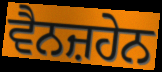
ਵੈਨਜ਼ਹੇਨ